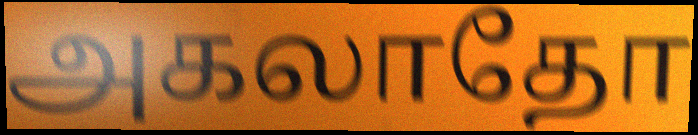
அகலாதோ